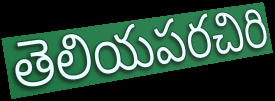
తెలియపరచిరి